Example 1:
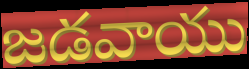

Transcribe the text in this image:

జడవాయు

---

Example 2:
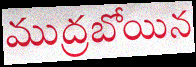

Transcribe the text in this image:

ముద్రబోయిన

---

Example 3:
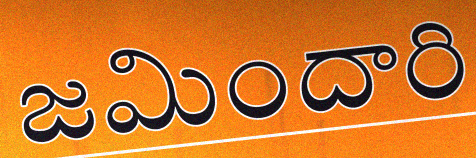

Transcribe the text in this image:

జమిందారి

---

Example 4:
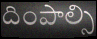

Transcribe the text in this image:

దింపాల్సి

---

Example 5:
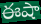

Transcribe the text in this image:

ఈషా